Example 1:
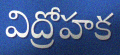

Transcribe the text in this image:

విద్రోహక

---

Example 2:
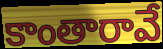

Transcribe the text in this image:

కాంతారావే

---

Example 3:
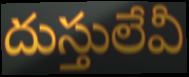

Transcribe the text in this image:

దుస్తులేవీ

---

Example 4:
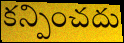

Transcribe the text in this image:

కన్పించదు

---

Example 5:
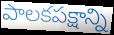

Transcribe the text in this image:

పాలకపక్షాన్ని